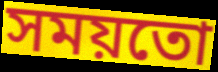
সময়তো